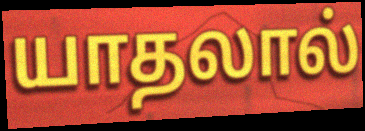
யாதலால்